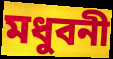
মধুবনী